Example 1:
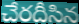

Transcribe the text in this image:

చేరదీసిన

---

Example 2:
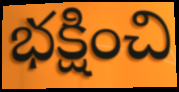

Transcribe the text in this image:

భక్షించి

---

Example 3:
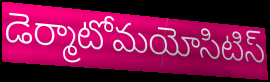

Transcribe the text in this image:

డెర్మాటోమయోసిటిస్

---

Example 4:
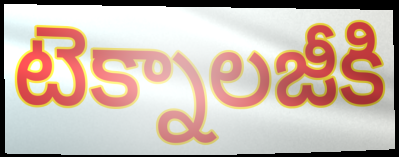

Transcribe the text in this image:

టెక్నాలజీకి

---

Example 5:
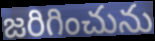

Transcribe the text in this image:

జరిగించును